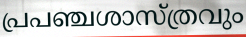
പ്രപഞ്ചശാസ്ത്രവും